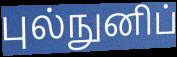
புல்நுனிப்